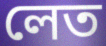
লেত